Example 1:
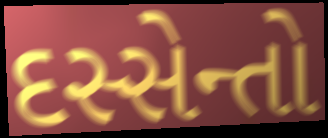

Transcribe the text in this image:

દસ્સેન્તો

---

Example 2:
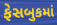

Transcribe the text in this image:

ફેસબુકમાં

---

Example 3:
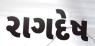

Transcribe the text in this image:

રાગદેષ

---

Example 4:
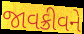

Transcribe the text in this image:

જાવક્રીવને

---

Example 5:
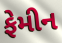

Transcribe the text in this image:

ફેમીન